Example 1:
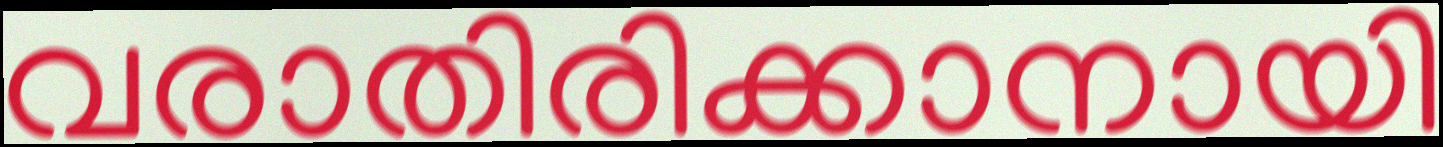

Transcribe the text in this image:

വരാതിരിക്കാനായി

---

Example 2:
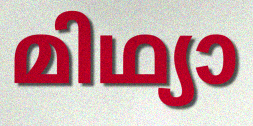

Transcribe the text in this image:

മിഥ്യാ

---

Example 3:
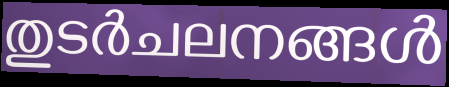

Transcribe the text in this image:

തുടർചലനങ്ങൾ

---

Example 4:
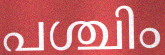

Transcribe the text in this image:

പശ്ചിം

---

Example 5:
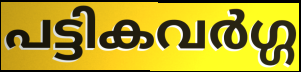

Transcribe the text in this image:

പട്ടികവർഗ്ഗ